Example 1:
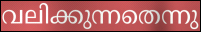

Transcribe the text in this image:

വലിക്കുന്നതെന്നു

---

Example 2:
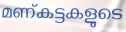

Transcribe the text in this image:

മണ്കട്ടകളുടെ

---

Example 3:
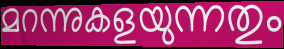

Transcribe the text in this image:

മറന്നുകളയുന്നതും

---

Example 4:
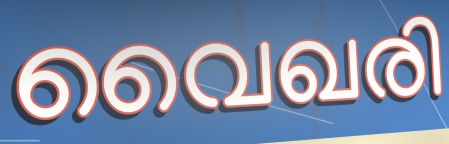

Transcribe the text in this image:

വൈഖരി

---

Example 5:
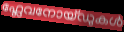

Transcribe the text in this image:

ഫ്ലേവനോയ്ഡുകൾ